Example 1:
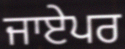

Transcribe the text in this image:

ਜਾਏਪਰ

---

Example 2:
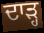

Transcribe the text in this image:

ਦਾੜ੍ਹ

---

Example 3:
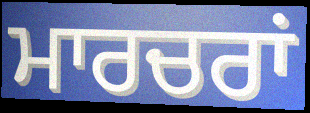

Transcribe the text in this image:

ਮਾਰਚਰਾਂ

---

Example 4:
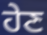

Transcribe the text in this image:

ਹੇਣ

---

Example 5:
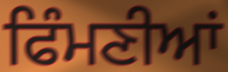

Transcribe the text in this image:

ਫਿੰਮਣੀਆਂ